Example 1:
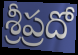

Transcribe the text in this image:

శ్రీప్రదో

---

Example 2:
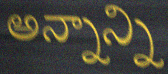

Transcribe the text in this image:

అన్నాన్ని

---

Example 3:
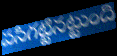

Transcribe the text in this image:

పసిగట్టినట్టుంది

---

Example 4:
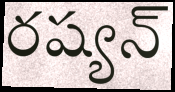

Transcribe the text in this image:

రష్యన్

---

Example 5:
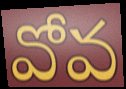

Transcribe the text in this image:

వోవ